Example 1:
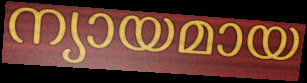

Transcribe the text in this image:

ന്യായമായ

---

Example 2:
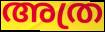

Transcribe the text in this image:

അത്ര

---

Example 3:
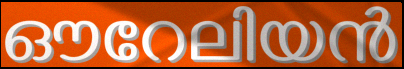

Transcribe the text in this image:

ഔറേലിയൻ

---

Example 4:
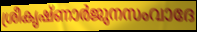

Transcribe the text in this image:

ശ്രീകൃഷ്ണാർജുനസംവാദേ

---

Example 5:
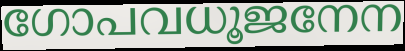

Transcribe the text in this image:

ഗോപവധൂജനേന